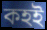
কহই